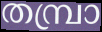
തമ്പ്രാ